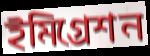
ইমিগ্রেশন